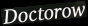
Doctorow